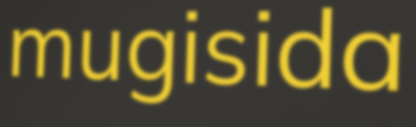
mugisida